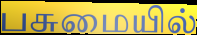
பசுமையில்